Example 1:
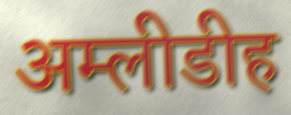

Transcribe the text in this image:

अम्लीडीह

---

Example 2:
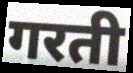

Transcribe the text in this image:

गरती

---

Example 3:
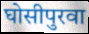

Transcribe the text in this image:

घोसीपुरवा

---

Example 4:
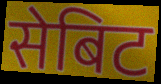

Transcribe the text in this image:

सेबिट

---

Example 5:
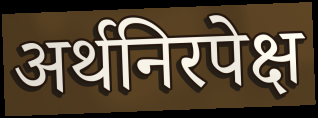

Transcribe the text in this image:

अर्थनिरपेक्ष